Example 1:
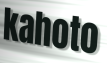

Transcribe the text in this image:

kahoto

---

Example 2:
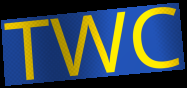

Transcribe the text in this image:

TWC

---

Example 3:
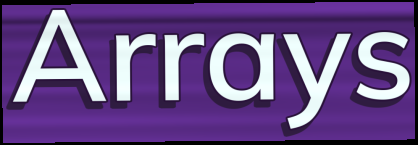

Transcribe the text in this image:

Arrays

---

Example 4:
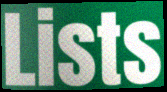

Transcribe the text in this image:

Lists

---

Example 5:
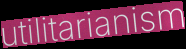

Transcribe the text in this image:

utilitarianism